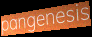
pangenesis